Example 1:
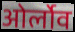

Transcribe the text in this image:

ओर्लोव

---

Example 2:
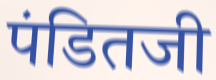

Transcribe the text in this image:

पंडितजी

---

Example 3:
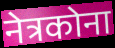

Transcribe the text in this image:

नेत्रकोना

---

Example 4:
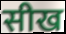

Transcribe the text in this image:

सीख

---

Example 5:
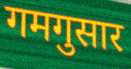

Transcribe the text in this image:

गमगुसार